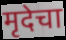
मृदेचा